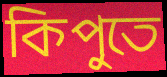
কিপুতে